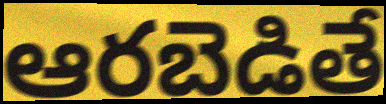
ఆరబెడితే